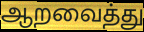
ஆறவைத்து